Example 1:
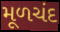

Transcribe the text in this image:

મૂળચંદ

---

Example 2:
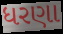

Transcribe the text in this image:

ધરણા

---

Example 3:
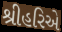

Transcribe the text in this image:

શ્રીહરિએ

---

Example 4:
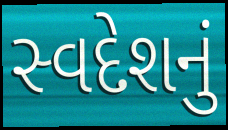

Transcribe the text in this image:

સ્વદેશનું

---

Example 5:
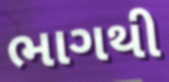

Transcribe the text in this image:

ભાગથી